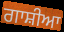
ਗਾਸ਼ੀਆ